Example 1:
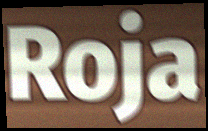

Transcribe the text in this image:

Roja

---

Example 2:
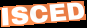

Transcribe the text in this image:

ISCED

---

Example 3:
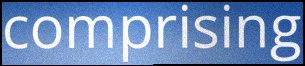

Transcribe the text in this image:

comprising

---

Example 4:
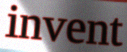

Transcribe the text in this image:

invent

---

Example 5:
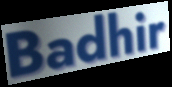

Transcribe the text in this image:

Badhir